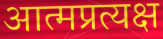
आत्मप्रत्यक्ष